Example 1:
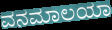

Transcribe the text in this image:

ವನಮಾಲಯಾ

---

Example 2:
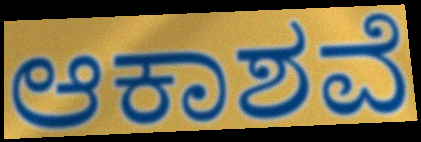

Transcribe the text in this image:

ಆಕಾಶವೆ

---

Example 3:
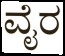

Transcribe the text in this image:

ವೈರ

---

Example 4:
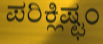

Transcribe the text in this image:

ಪರಿಕ್ಲಿಷ್ಟಂ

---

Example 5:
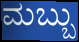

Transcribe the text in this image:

ಮಬ್ಬು